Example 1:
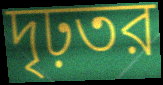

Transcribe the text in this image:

দৃঢ়তর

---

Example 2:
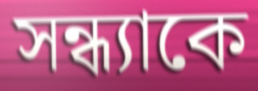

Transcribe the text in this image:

সন্ধ্যাকে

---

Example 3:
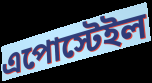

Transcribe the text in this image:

এপোস্টেইল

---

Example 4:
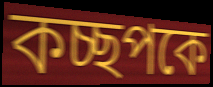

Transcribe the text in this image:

কচ্ছপকে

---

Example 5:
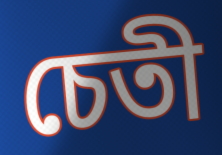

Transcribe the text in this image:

চেতী